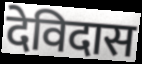
देविदास